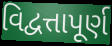
વિદ્વત્તાપૂર્ણ